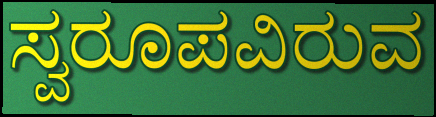
ಸ್ವರೂಪವಿರುವ